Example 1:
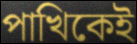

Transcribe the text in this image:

পাখিকেই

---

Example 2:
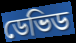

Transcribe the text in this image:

ডেভিড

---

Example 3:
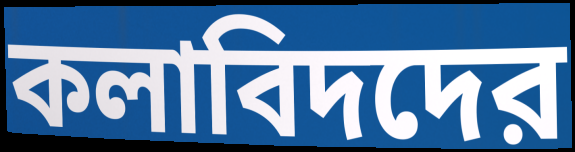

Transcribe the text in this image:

কলাবিদদের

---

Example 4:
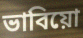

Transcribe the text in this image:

ভাবিয়ো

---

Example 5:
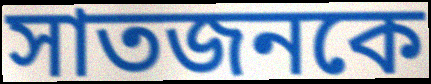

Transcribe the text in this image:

সাতজনকে